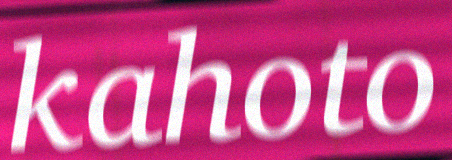
kahoto